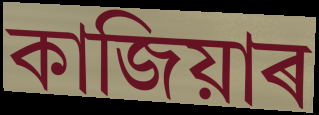
কাজিয়াৰ